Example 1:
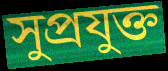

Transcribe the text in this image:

সুপ্রযুক্ত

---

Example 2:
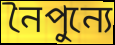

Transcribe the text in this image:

নৈপুন্যে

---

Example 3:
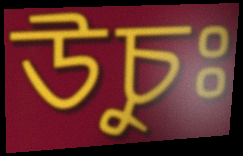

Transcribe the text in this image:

উচুঃ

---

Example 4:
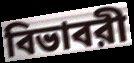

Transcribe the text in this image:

বিভাবরী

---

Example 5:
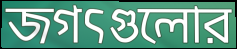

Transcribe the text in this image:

জগৎগুলোর